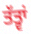
ਤੱਤ੍ਵਾਂ